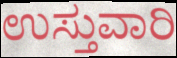
ಉಸ್ತುವಾರಿ